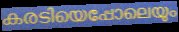
കരടിയെപ്പോലെയും